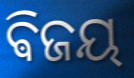
ଵିଜୟ